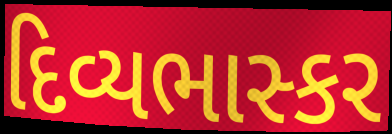
દિવ્યભાસ્કર